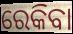
ରେକିବା